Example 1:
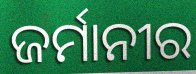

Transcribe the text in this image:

ଜର୍ମାନୀର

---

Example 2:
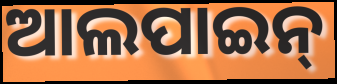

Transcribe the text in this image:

ଆଲପାଇନ୍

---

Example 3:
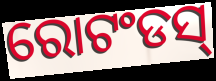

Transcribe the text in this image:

ରୋଟଂଡସ୍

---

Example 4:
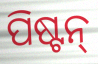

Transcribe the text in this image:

ପିଷ୍ଟନ୍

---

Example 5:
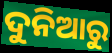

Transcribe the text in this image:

ଦୁନିଆରୁ